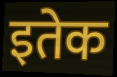
इतेक